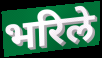
भरिले